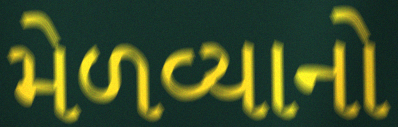
મેળવ્યાનો